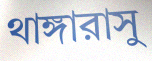
থাঙ্গারাসু